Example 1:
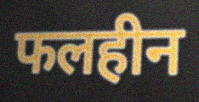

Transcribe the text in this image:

फलहीन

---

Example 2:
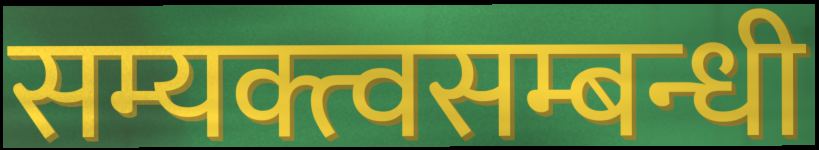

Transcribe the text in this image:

सम्यक्त्वसम्बन्धी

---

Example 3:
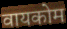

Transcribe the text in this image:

वायकोम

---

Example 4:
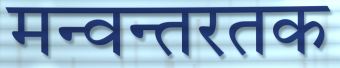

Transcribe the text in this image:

मन्वन्तरतक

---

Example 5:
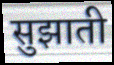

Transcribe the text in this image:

सुझाती